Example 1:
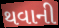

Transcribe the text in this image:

થવાની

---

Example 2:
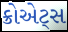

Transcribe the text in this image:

ક્રોએટ્સ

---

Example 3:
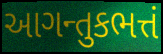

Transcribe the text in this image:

આગન્તુકભત્તં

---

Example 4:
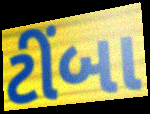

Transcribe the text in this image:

ટીંબા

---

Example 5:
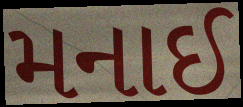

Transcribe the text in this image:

મનાઈ